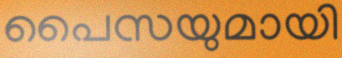
പൈസയുമായി